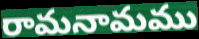
రామనామము